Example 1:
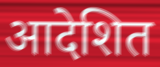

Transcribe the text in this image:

आदेशित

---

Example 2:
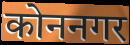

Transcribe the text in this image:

कोननगर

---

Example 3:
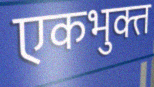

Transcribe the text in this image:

एकभुक्त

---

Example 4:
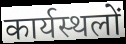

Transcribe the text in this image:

कार्यस्थलों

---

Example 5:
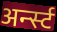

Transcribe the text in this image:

अर्न्स्ट